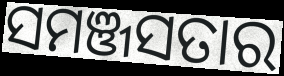
ସମଞ୍ଜସତାର